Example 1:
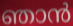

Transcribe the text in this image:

ഞാൻ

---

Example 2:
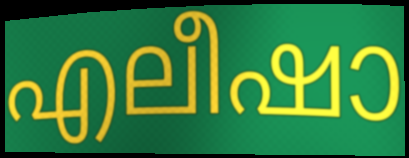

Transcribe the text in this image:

എലീഷാ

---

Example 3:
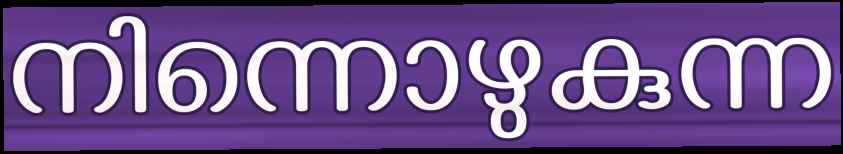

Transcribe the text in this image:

നിന്നൊഴുകുന്ന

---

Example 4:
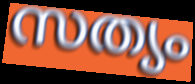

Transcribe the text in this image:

സത്യം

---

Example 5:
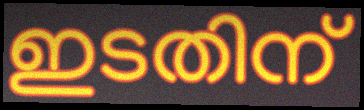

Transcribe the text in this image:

ഇടതിന്